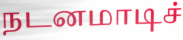
நடனமாடிச்